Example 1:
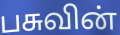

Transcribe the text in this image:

பசுவின்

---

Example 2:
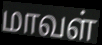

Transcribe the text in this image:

மாவள்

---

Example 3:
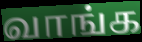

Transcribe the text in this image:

வாங்க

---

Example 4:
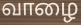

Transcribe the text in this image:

வாழை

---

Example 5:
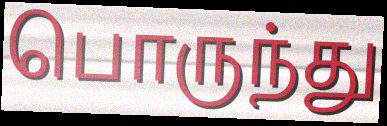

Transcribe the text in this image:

பொருந்து